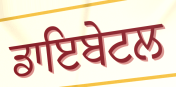
ਡਾਇਬੇਟਲ